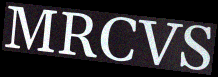
MRCVS